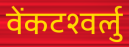
वेंकटश्वर्लु